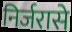
निर्जरासे